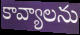
కావ్యాలను